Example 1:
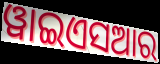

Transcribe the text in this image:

ୱାଇଏସଆର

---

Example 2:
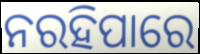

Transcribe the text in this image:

ନରହିପାରେ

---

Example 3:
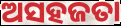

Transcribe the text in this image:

ଅସହଜତା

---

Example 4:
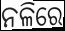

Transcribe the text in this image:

ନଳିରେ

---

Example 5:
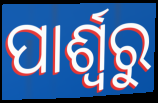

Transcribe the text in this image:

ପାର୍ଶ୍ଵରୁ